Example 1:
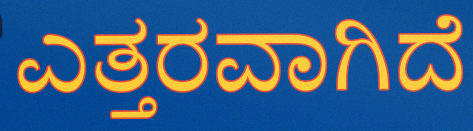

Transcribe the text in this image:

ಎತ್ತರವಾಗಿದೆ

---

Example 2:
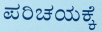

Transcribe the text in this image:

ಪರಿಚಯಕ್ಕೆ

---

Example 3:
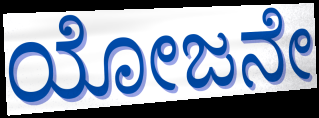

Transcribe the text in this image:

ಯೋಜನೇ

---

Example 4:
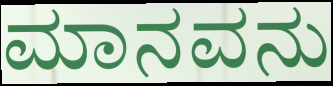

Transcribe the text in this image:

ಮಾನವನು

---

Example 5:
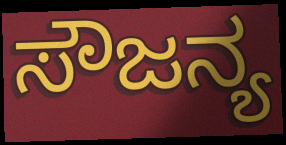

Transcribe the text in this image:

ಸೌಜನ್ಯ